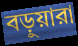
বড়ুয়ারা